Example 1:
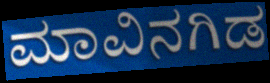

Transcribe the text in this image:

ಮಾವಿನಗಿಡ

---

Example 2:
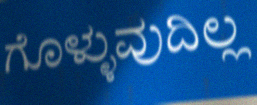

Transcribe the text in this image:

ಗೊಳ್ಳುವುದಿಲ್ಲ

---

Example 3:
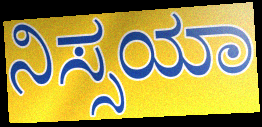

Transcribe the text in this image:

ನಿಸ್ಸಯಾ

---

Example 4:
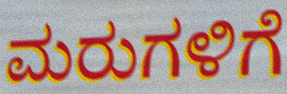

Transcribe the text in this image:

ಮರುಗಳಿಗೆ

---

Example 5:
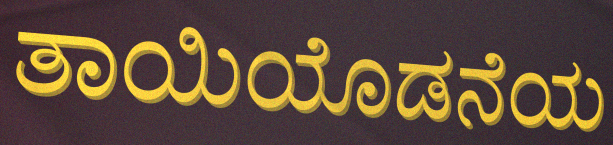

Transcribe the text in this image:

ತಾಯಿಯೊಡನೆಯ